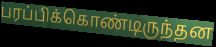
பரப்பிக்கொண்டிருந்தன